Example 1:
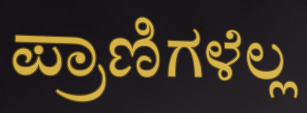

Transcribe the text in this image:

ಪ್ರಾಣಿಗಳೆಲ್ಲ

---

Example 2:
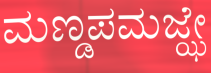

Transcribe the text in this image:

ಮಣ್ಡಪಮಜ್ಝೇ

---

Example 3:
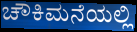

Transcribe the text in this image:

ಚೌಕಿಮನೆಯಲ್ಲಿ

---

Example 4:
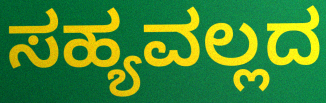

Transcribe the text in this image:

ಸಹ್ಯವಲ್ಲದ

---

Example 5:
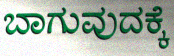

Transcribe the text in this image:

ಬಾಗುವುದಕ್ಕೆ